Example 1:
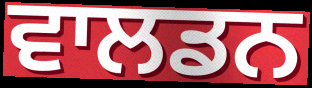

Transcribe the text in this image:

ਵਾਲਡਨ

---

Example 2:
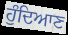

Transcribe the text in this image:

ਹੁੰਦਿਆਣ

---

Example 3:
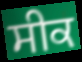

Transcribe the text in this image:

ਸੀਕ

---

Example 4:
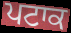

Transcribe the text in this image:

ਪਟਾਕ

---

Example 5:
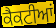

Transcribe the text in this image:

ਕੈਕਟੀਆਂ